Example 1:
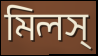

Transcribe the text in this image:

মিলস্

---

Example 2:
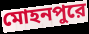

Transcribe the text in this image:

মোহনপুরে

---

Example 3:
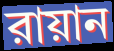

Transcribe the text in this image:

রায়ান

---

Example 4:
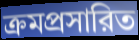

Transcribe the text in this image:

ক্রমপ্রসারিত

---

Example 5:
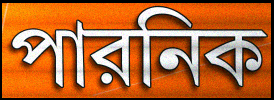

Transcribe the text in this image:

পারনিক